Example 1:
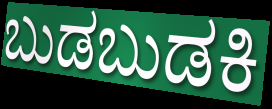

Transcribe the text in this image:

ಬುಡಬುಡಕಿ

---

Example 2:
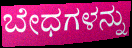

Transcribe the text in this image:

ಬೇಧಗಳನ್ನು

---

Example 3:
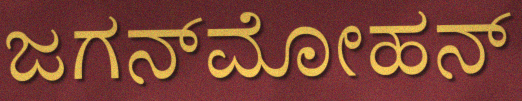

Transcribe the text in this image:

ಜಗನ್‌ಮೋಹನ್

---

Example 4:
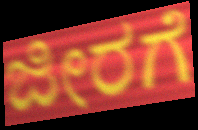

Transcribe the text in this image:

ಜೀರಗೆ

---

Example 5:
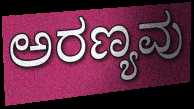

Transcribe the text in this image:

ಅರಣ್ಯವು